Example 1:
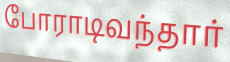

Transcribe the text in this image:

போராடிவந்தார்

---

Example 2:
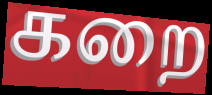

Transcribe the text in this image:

கறை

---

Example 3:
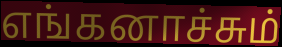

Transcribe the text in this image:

எங்கனாச்சும்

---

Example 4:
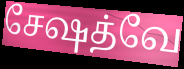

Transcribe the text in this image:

சேஷத்வே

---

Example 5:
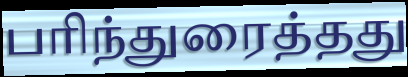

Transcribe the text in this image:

பரிந்துரைத்தது